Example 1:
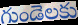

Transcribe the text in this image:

గుండెలకు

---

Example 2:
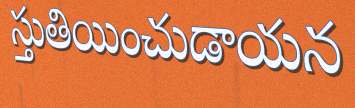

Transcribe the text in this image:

స్తుతియించుడాయన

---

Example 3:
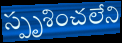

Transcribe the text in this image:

స్పృశించలేని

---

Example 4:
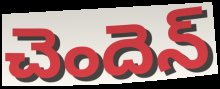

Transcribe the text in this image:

చెందెన్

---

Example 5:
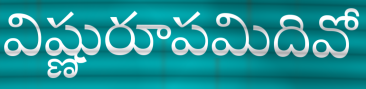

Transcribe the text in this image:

విష్ణురూపమిదివో